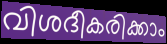
വിശദീകരിക്കാം